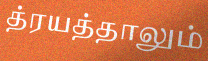
த்ரயத்தாலும்